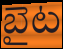
బైట